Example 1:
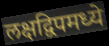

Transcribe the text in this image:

लक्षद्विपमध्ये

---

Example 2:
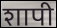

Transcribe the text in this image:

शापी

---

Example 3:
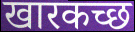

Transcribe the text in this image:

खारकच्छ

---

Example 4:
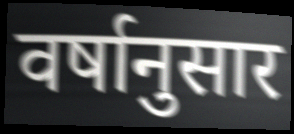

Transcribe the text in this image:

वर्षानुसार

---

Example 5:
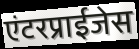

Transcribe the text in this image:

एंटरप्राईजेस